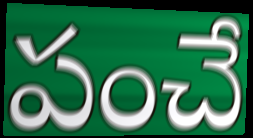
పంచే